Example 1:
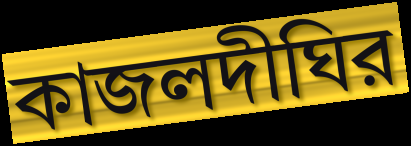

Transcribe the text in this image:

কাজলদীঘির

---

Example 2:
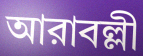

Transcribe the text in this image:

আরাবল্লী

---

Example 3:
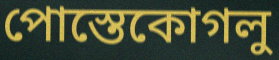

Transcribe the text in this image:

পোস্তেকোগলু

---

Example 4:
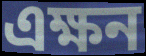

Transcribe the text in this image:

এক্ষন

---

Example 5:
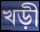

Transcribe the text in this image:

খড়ী